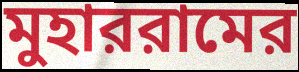
মুহাররামের